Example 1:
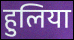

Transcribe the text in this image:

हुलिया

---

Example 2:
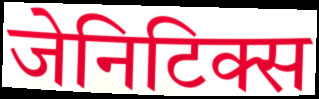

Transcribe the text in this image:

जेनिटिक्स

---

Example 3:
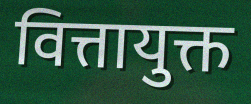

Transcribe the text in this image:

वित्तायुक्त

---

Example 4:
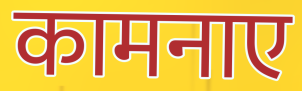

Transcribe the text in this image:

कामनाए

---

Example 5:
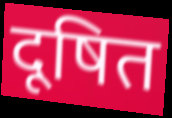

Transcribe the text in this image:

दूषित